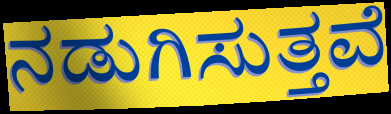
ನಡುಗಿಸುತ್ತವೆ